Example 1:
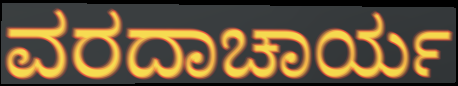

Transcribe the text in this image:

ವರದಾಚಾರ್ಯ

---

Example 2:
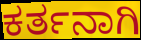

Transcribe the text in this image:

ಕರ್ತನಾಗಿ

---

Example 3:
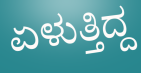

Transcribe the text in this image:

ಏಳುತ್ತಿದ್ದ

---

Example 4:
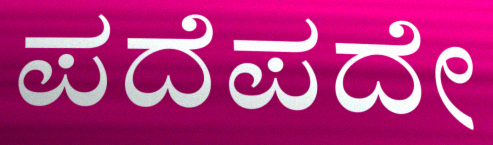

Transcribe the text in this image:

ಪದೆಪದೇ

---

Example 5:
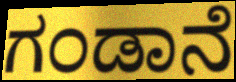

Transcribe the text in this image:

ಗಂಡಾನೆ